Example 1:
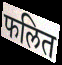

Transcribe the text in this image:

फलित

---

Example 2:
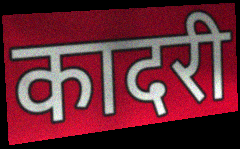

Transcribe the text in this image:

कादरी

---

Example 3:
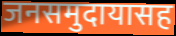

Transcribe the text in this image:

जनसमुदायासह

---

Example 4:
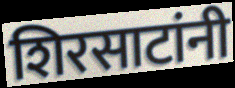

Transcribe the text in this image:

शिरसाटांनी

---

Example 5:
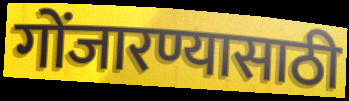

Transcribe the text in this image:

गोंजारण्यासाठी